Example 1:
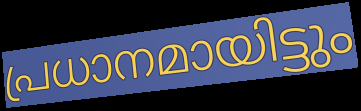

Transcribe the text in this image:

പ്രധാനമായിട്ടും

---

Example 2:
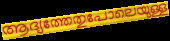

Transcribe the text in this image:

ആദ്യത്തേതുപോലെയുള്ള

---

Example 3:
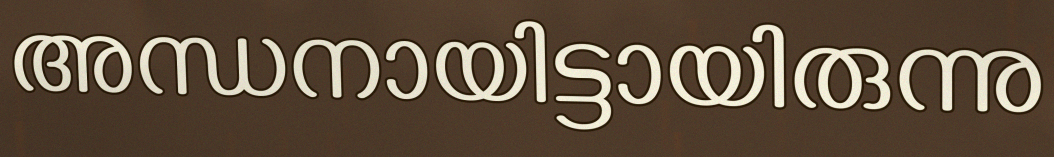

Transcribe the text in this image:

അന്ധനായിട്ടായിരുന്നു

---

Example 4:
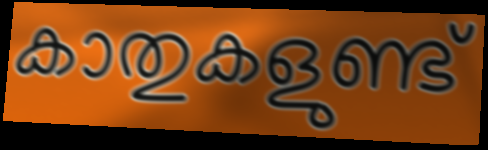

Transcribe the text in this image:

കാതുകളുണ്ട്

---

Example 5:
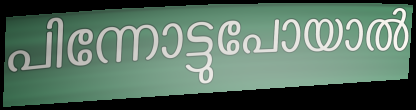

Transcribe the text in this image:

പിന്നോട്ടുപോയാൽ